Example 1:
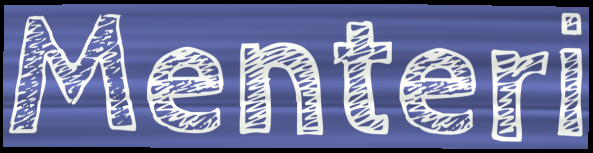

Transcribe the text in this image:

Menteri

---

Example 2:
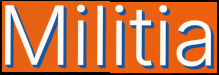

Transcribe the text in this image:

Militia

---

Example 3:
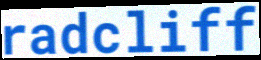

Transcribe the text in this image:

radcliff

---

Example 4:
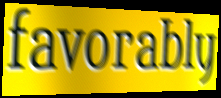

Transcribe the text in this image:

favorably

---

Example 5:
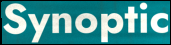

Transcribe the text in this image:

Synoptic